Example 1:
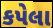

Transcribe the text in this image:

કપેલા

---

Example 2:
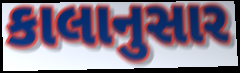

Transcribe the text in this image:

કાલાનુસાર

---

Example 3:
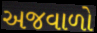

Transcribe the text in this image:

અજવાળો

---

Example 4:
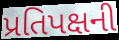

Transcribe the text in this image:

પ્રતિપક્ષની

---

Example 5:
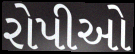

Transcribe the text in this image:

રોપીઓ